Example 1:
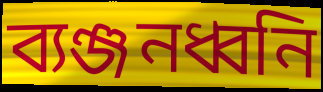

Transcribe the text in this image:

ব্যঞ্জনধ্বনি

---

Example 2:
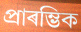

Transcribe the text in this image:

প্ৰাৰম্ভিক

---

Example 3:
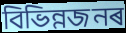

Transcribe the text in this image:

বিভিন্নজনৰ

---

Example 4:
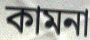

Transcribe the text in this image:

কামনা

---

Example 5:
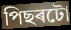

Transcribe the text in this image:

পিছৰটো